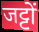
जट्टों